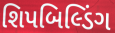
શિપબિલ્ડિંગ